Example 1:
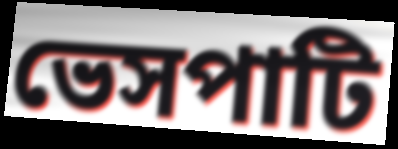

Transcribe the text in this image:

ভেসপাটি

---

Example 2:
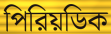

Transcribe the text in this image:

পিরিয়ডিক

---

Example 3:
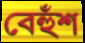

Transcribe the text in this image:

বেহুঁশ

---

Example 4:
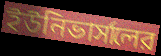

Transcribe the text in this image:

ইউনিভার্সালের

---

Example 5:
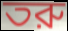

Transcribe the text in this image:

তরু